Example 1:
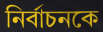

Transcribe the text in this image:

নির্বাচনকে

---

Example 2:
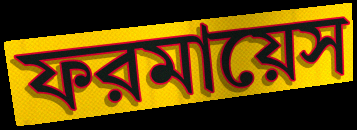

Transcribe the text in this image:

ফরমায়েস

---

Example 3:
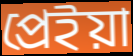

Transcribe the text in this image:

প্রেইয়া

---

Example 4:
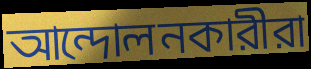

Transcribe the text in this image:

আন্দোলনকারীরা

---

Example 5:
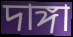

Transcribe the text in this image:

দাঙ্গা